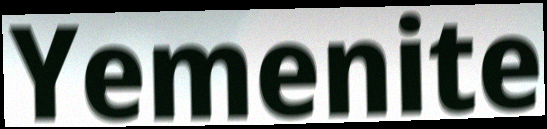
Yemenite